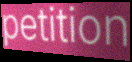
petition